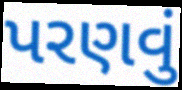
પરણવું